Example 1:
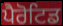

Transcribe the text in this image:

ਪੈਰੋਟਿਡ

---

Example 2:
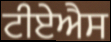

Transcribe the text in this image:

ਟੀਏਐਸ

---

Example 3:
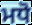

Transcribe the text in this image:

ਮਧੋ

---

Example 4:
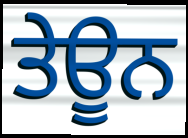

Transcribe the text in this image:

ਤੇਊਨ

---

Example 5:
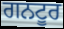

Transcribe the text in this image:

ਗਨਟੂਰ